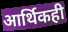
आर्थिकही